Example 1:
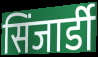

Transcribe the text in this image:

सिंजार्डी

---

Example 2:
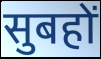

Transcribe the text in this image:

सुबहों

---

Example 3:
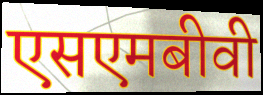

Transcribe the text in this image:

एसएमबीवी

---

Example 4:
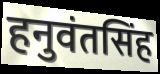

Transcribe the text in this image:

हनुवंतसिंह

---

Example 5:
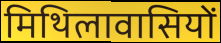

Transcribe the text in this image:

मिथिलावासियों